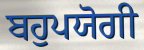
ਬਹੁਪਯੋਗੀ